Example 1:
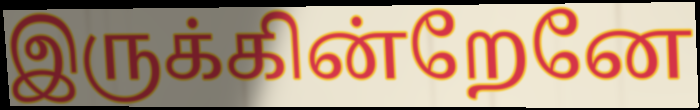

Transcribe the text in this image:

இருக்கின்றேனே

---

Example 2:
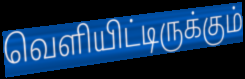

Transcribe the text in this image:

வெளியிட்டிருக்கும்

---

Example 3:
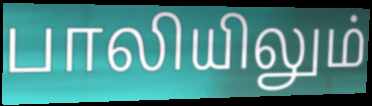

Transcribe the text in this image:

பாலியிலும்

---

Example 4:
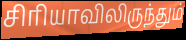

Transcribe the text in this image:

சிரியாவிலிருந்தும்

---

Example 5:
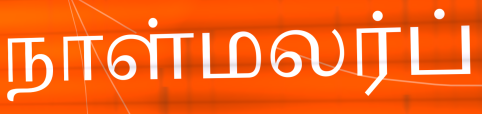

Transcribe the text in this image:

நாள்மலர்ப்